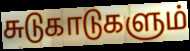
சுடுகாடுகளும்